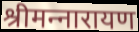
श्रीमन्नारायण